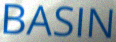
BASIN